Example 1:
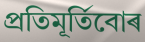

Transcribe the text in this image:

প্ৰতিমূৰ্তিবোৰ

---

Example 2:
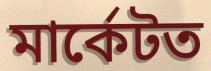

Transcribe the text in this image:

মাৰ্কেটত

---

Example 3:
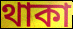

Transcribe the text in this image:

থাকা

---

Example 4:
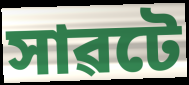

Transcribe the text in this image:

সাৱটে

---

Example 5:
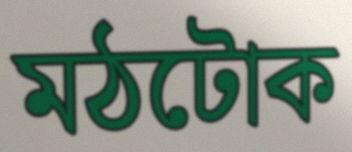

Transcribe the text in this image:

মঠটোক